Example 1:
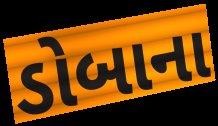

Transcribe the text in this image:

ડોબાના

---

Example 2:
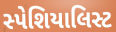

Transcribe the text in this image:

સ્પેશિયાલિસ્ટ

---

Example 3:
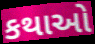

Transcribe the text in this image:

કથાઓ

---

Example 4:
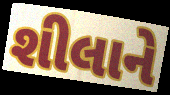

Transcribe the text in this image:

શીલાને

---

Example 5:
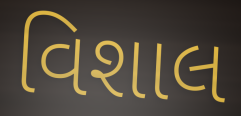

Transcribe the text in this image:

વિશાલ